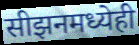
सीझनमध्येही